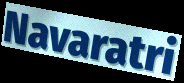
Navaratri